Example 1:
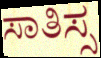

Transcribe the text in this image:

ಸಾತಿಸ್ಸ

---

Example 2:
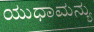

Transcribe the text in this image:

ಯುಧಾಮನ್ಯು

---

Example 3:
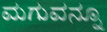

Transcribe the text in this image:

ಮಗುವನ್ನೂ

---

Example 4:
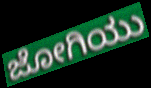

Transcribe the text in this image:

ಜೋಗಿಯು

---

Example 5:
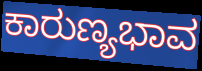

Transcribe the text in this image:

ಕಾರುಣ್ಯಭಾವ